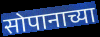
सोपानाच्या